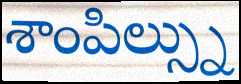
శాంపిల్స్ను